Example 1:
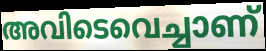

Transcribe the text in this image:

അവിടെവെച്ചാണ്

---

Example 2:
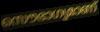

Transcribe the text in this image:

സൌഭാഗ്യമാണ്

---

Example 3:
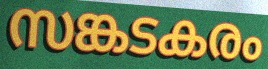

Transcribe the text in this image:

സങ്കടകരം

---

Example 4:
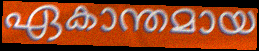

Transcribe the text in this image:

ഏകാന്തമായ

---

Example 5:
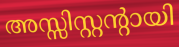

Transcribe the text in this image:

അസ്സിസ്റ്റന്റായി